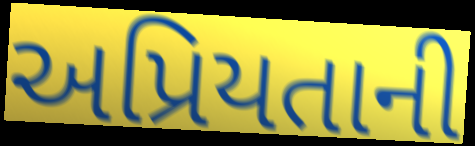
અપ્રિયતાની